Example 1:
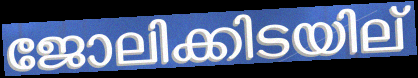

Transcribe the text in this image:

ജോലിക്കിടയില്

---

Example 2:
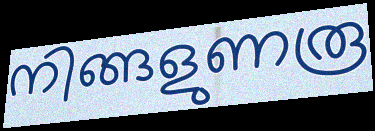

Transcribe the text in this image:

നിങ്ങളുണരൂ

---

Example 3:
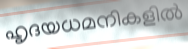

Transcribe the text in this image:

ഹൃദയധമനികളിൽ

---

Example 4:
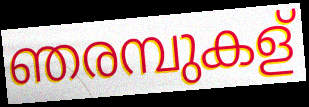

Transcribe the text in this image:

ഞരമ്പുകള്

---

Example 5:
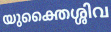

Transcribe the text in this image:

യുക്തൈശ്ശിവ